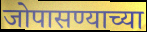
जोपासण्याच्या